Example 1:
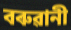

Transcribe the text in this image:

বৰুৱানী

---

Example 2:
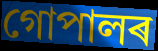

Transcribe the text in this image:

গোপালৰ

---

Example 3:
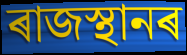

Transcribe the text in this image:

ৰাজস্থানৰ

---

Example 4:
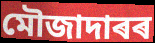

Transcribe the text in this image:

মৌজাদাৰৰ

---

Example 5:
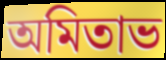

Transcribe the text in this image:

অমিতাভ